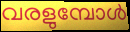
വരളുമ്പോൾ